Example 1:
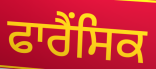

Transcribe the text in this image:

ਫਾਰੈਂਸਿਕ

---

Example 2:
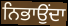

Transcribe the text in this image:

ਨਿਭਾਉਂਦਾ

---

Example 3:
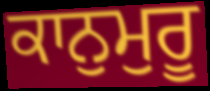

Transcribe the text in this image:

ਕਾਨੁਮੁਰੂ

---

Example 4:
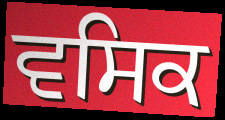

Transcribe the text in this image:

ਵਸਿਕ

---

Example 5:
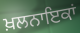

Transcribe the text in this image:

ਖ਼ਲਨਾਇਕਾਂ